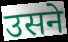
उसने